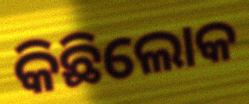
କିଛିଲୋକ